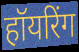
हॉयरिंग